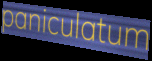
paniculatum